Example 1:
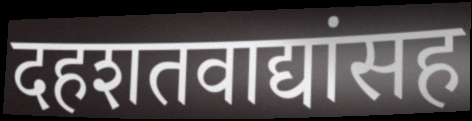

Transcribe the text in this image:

दहशतवाद्यांसह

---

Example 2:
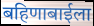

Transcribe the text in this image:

बहिणाबाईला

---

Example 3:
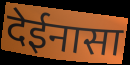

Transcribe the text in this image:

देईनासा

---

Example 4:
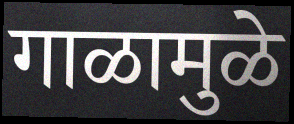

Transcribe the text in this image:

गाळामुळे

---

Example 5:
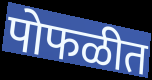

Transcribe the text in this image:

पोफळीत